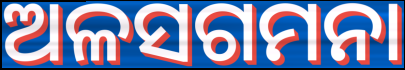
ଅଳସଗମନା